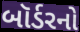
બૉર્ડરનો